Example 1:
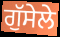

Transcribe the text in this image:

ਗੁੱਸੇਲੇ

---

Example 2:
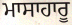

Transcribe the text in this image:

ਮਾਸਾਹਾਰੂ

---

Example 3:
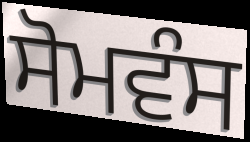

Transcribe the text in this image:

ਸੋਮਵੰਸ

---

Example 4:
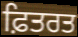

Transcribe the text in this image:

ਫ਼ਿਤਰਤ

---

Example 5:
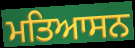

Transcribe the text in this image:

ਮਤਿਆਸਨ